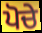
ਪੋਚੇ